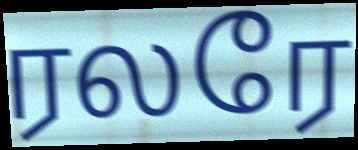
ரலரே